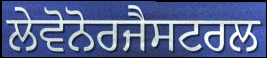
ਲੇਵੋਨੋਰਜੈਸਟਰਲ